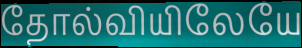
தோல்வியிலேயே